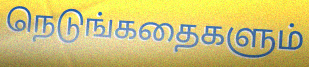
நெடுங்கதைகளும்